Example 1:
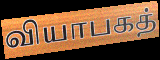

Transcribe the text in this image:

வியாபகத்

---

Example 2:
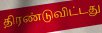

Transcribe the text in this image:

திரண்டுவிட்டது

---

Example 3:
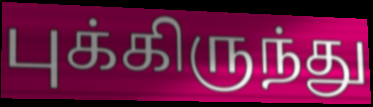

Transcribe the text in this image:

புக்கிருந்து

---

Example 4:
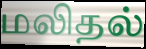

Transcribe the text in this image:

மலிதல்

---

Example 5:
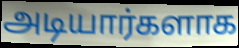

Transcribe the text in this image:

அடியார்களாக